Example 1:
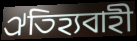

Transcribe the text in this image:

ঐতিহ্যবাহী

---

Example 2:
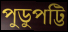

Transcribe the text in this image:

পুডুপট্টি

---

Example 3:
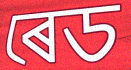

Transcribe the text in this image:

ৰেড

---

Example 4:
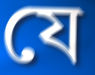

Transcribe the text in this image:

যে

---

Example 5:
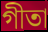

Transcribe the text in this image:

গীতা